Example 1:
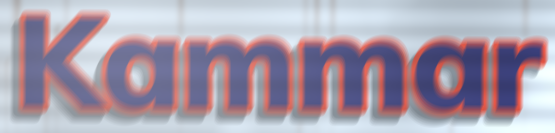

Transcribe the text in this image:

Kammar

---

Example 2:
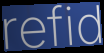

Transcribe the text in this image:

refid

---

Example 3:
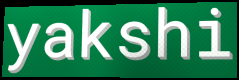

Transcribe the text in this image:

yakshi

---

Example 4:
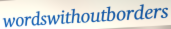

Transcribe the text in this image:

wordswithoutborders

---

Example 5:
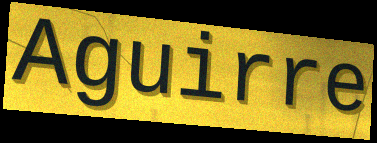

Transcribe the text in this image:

Aguirre